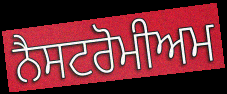
ਨੈਸਟਰੋਮੀਅਮ